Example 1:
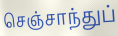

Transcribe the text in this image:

செஞ்சாந்துப்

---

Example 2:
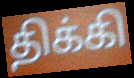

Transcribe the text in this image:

திக்கி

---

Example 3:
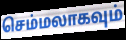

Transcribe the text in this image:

செம்மலாகவும்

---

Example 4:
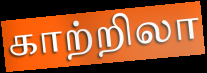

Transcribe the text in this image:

காற்றிலா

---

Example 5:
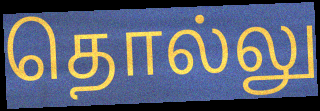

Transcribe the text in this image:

தொல்லு